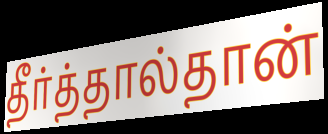
தீர்த்தால்தான்